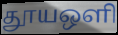
தூயஒளி